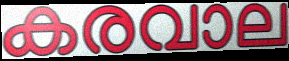
കരവാല